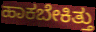
ಹಾಕಬೇಕಿತ್ತು